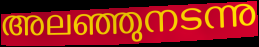
അലഞ്ഞുനടന്നു